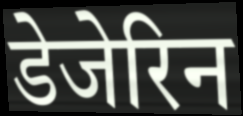
डेजेरिन